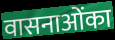
वासनाओंका